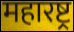
महारष्ट्र